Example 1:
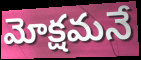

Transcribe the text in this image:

మోక్షమనే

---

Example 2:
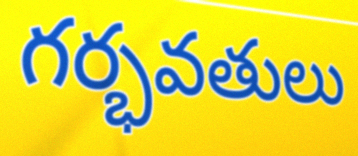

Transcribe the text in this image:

గర్భవతులు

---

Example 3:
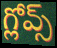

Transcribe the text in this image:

గ్లోవ్స్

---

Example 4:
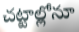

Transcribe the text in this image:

చట్టాల్లోనూ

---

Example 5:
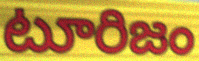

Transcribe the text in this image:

టూరిజం